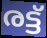
രട്ട്